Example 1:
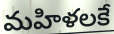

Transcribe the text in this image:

మహిళలకే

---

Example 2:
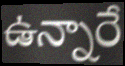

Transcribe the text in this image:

ఉన్నారే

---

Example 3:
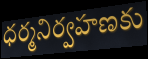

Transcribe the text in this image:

ధర్మనిర్వహణకు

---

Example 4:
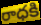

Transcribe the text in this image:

రాధకి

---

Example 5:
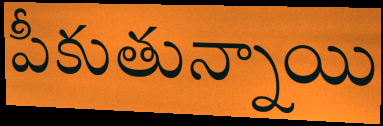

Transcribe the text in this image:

పీకుతున్నాయి